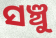
ସଞ୍ଚୁ